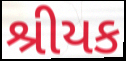
શ્રીયક